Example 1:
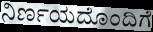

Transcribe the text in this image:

ನಿರ್ಣಯದೊಂದಿಗೆ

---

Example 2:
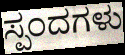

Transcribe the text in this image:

ಸ್ಪಂದಗಳು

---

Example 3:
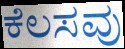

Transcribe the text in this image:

ಕೆಲಸವು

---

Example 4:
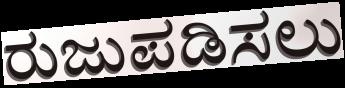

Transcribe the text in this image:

ರುಜುಪಡಿಸಲು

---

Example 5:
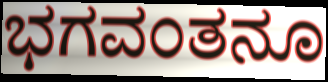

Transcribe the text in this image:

ಭಗವಂತನೂ